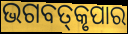
ଭଗବତ୍‌କୃପାର